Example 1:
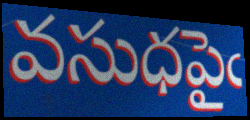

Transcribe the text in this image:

వసుధపైఁ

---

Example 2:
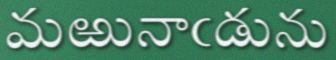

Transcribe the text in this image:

మఱునాఁడును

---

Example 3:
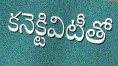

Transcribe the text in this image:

కనెక్టివిటీతో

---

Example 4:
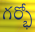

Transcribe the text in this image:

గర్భో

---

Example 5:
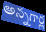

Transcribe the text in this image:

అన్నగార్ల